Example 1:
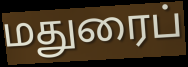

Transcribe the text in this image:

மதுரைப்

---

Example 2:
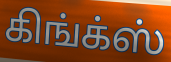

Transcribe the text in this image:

கிங்க்ஸ்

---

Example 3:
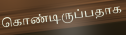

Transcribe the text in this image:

கொண்டிருப்பதாக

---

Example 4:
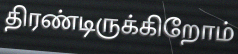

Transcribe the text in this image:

திரண்டிருக்கிறோம்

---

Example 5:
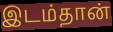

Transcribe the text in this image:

இடம்தான்